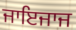
ਜਾਇਜਾਜ